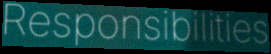
Responsibilities